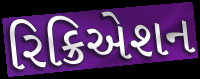
રિક્રિએશન